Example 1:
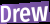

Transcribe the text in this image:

Drew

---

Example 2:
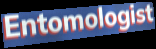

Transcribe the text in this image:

Entomologist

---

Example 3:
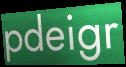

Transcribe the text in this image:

pdeigr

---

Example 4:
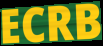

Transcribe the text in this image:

ECRB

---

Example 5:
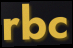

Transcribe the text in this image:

rbc